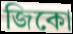
জিকো